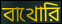
বাথোরি